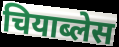
चियाब्लेस